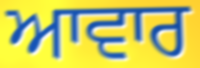
ਆਵਾਰ